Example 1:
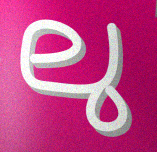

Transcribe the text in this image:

ലു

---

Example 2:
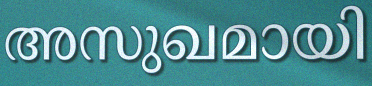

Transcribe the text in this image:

അസുഖമായി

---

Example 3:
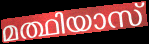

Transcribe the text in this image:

മത്ഥിയാസ്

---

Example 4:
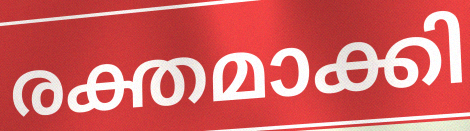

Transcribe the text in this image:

രക്തമാക്കി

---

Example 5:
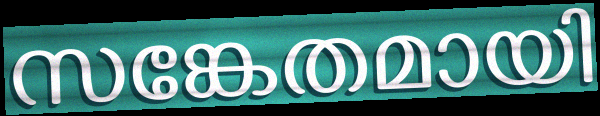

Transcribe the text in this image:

സങ്കേതമായി